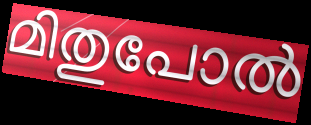
മിതുപോൽ